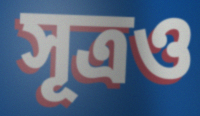
সূত্ৰও